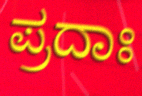
ಪ್ರದಾಃ